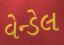
વેન્ડેલ